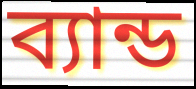
ব্যান্ড